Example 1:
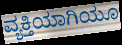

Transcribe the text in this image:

ವ್ಯಕ್ತಿಯಾಗಿಯೂ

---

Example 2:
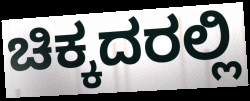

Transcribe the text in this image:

ಚಿಕ್ಕದರಲ್ಲಿ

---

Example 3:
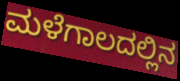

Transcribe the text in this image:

ಮಳೆಗಾಲದಲ್ಲಿನ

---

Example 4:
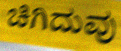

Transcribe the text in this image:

ಚಿಗಿದುವು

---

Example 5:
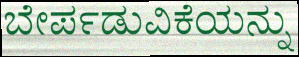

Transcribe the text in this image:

ಬೇರ್ಪಡುವಿಕೆಯನ್ನು